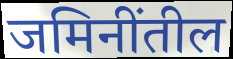
जमिनींतील